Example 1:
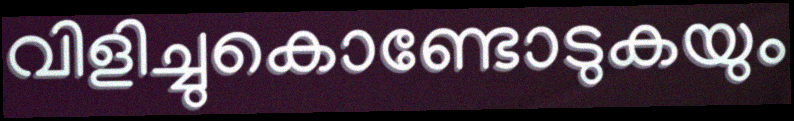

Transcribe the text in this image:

വിളിച്ചുകൊണ്ടോടുകയും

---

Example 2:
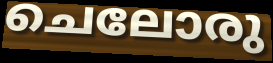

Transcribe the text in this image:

ചെലോരു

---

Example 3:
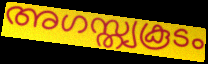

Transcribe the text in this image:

അഗസ്ത്യകൂടം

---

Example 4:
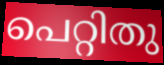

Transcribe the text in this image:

പെറ്റിതു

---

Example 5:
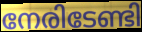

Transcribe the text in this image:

നേരിടേണ്ടി